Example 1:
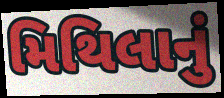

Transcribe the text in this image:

મિથિલાનું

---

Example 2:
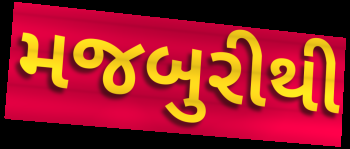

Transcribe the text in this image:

મજબુરીથી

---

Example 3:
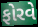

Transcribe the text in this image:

ફોરવે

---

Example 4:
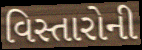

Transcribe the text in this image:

વિસ્તારોની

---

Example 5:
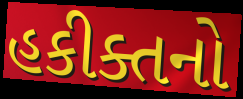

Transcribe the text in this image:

હકીક્તનો